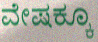
ವೇಷಕ್ಕೂ